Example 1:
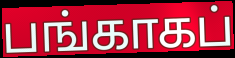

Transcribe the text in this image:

பங்காகப்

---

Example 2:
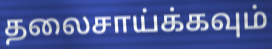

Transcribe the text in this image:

தலைசாய்க்கவும்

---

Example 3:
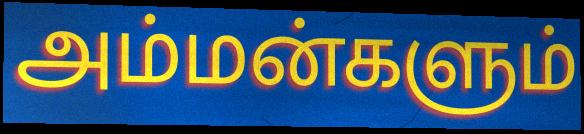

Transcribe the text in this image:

அம்மன்களும்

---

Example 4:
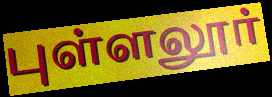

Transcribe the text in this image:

புள்ளலூர்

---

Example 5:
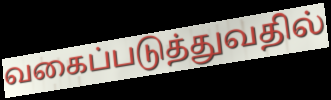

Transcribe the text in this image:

வகைப்படுத்துவதில்